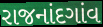
રાજનાંદગાંવ